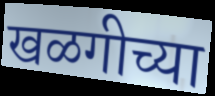
खळगीच्या